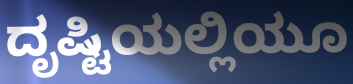
ದೃಷ್ಟಿಯಲ್ಲಿಯೂ